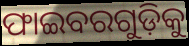
ଫାଇବରଗୁଡ଼ିକୁ